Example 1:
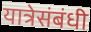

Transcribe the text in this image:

यात्रेसंबंधी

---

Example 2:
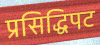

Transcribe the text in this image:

प्रसिद्धिपट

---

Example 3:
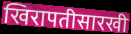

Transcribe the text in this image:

खिरापतीसारखी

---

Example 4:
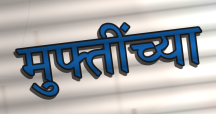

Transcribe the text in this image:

मुफ्तींच्या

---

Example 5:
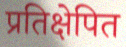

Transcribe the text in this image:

प्रतिक्षेपित